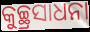
କୁଚ୍ଛ୍ରସାଧନା